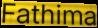
Fathima